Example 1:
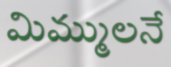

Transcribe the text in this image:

మిమ్ములనే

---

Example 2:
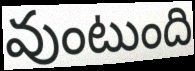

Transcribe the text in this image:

వుంటుంది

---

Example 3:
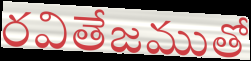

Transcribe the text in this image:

రవితేజముతో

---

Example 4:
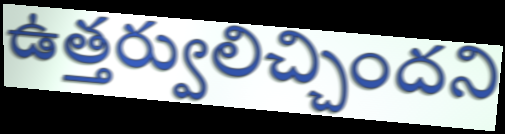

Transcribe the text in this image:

ఉత్తర్వులిచ్చిందని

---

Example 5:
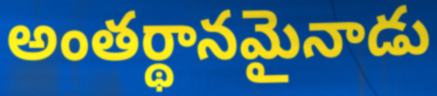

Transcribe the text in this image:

అంతర్థానమైనాడు